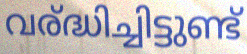
വര്ദ്ധിച്ചിട്ടുണ്ട്